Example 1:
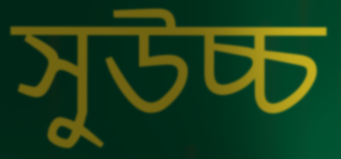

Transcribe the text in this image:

সুউচ্চ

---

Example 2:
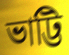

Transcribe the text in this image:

ভাট্টি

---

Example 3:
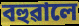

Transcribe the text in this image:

বহুৱালে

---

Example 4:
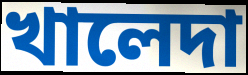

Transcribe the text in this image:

খালেদা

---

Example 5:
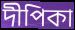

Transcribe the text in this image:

দীপিকা